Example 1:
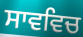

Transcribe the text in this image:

ਸਾਵਵਿਚ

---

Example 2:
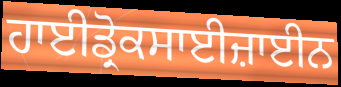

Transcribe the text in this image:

ਹਾਈਡ੍ਰੋਕਸਾਈਜ਼ਾਈਨ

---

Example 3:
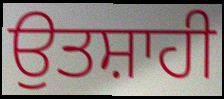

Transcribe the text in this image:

ਉਤਸ਼ਾਹੀ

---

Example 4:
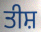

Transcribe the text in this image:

ਤੀਸ਼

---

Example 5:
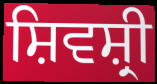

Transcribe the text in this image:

ਸ਼ਿਵਸ਼੍ਰੀ